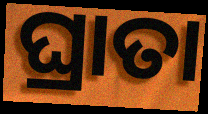
ଘ୍ରାତା